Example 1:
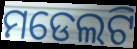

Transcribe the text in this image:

ମଡେଲଟି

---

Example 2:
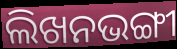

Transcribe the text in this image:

ଲିଖନଭଙ୍ଗୀ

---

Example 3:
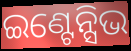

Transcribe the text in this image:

ଇଣ୍ଟେନ୍ସିଭ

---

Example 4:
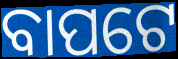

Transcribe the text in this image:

ବାପଟେ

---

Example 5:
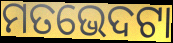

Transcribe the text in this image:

ମତଭେଦଟା